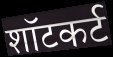
शॉटकर्ट